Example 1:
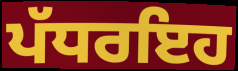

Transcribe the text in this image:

ਪੱਧਰਇਹ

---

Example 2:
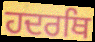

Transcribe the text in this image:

ਹਦਰਥਿ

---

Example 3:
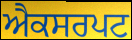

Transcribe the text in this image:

ਐਕਸਰਪਟ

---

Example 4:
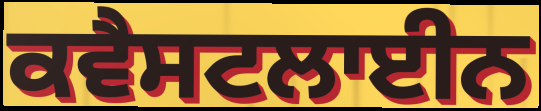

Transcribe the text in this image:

ਕਵੈਸਟਲਾਈਨ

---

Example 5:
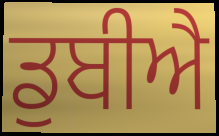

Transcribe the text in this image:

ਡੁਬੀਐ